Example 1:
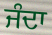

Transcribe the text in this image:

ਜੰਦਾ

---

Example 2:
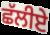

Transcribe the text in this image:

ਛੱਲੀਏ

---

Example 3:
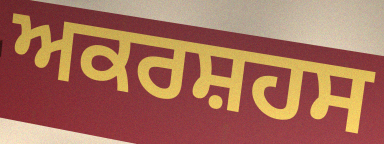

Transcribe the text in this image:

ਅਕਰਸ਼ਹਸ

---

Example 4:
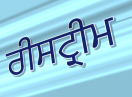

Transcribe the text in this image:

ਰੀਸਟ੍ਰੀਮ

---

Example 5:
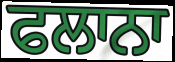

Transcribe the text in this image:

ਫਲਾਨਾ